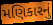
મણિકારનું